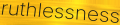
ruthlessness